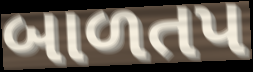
બાળતપ